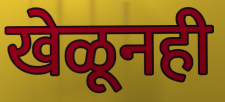
खेळूनही